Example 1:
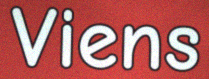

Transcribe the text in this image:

Viens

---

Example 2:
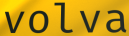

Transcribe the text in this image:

volva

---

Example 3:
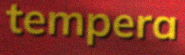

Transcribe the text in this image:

tempera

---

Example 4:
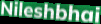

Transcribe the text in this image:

Nileshbhai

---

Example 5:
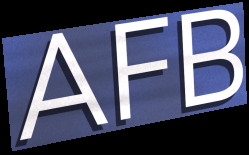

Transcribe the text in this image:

AFB